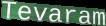
Tevaram